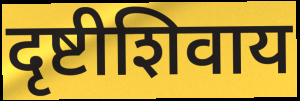
दृष्टीशिवाय